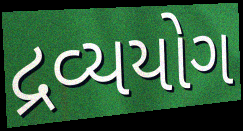
દ્રવ્યયોગ